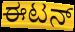
ಈಟನ್